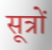
सूत्रों